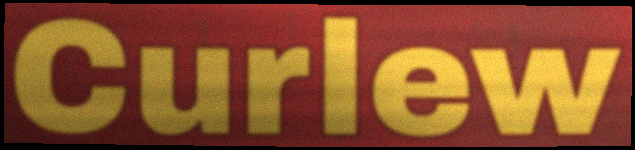
Curlew